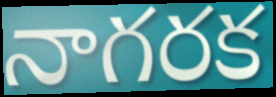
నాగరక